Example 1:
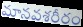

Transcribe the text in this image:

మానవశరీరం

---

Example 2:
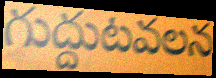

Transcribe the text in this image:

గుద్దుటవలన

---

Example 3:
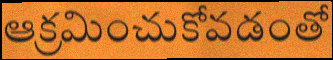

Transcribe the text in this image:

ఆక్రమించుకోవడంతో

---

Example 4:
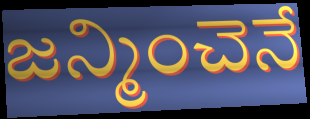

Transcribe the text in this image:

జన్మించెనే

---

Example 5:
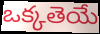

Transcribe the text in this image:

ఒక్కతెయే